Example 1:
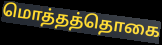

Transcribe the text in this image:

மொத்தத்தொகை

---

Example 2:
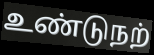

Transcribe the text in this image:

உண்டுநற்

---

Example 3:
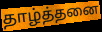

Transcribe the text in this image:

தாழ்த்தனை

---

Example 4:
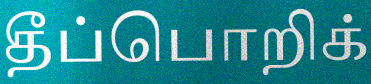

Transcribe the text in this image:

தீப்பொறிக்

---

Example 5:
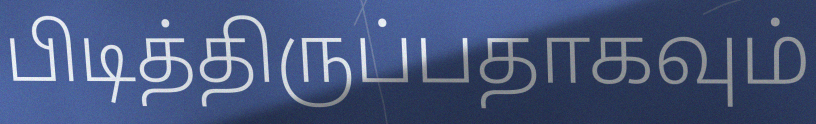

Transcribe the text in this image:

பிடித்திருப்பதாகவும்